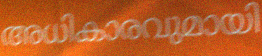
അധികാരവുമായി